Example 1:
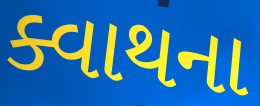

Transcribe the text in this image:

ક્વાથના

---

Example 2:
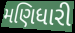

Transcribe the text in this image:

મણિધારી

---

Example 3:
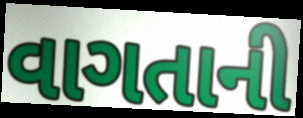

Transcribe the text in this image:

વાગતાની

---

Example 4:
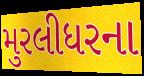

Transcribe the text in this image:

મુરલીધરના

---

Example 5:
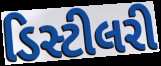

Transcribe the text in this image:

ડિસ્ટીલરી